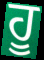
ਹੂ